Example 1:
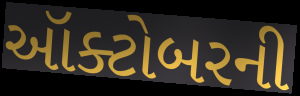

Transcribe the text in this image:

ઑક્ટોબરની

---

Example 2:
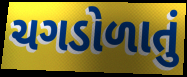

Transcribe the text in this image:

ચગડોળાતું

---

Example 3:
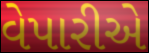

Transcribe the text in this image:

વેપારીએ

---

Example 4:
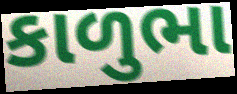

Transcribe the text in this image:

કાળુભા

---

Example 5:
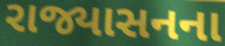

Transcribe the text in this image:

રાજ્યાસનના